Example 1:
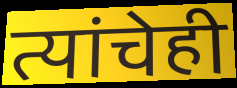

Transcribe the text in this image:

त्यांचेही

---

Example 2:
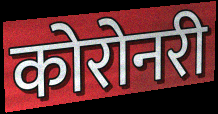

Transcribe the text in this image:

कोरोनरी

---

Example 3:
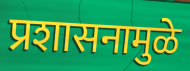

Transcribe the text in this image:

प्रशासनामुळे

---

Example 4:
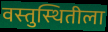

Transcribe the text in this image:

वस्तुस्थितीला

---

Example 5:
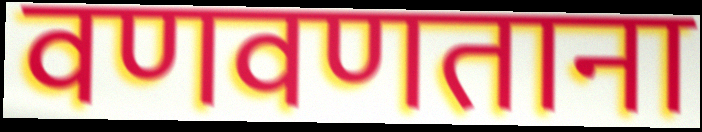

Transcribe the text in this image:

वणवणताना